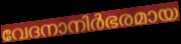
വേദനാനിർഭരമായ